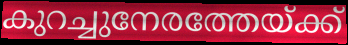
കുറച്ചുനേരത്തേയ്ക്ക്